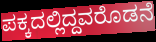
ಪಕ್ಕದಲ್ಲಿದ್ದವರೊಡನೆ